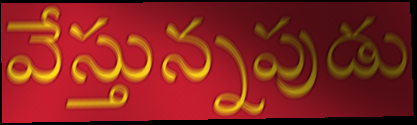
వేస్తున్నపుడు